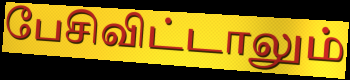
பேசிவிட்டாலும்